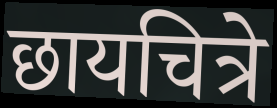
छायचित्रे